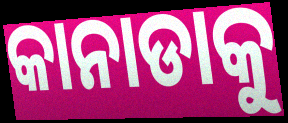
କାନାଡାକୁ